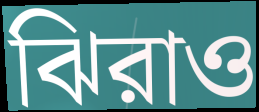
ঝিরাও